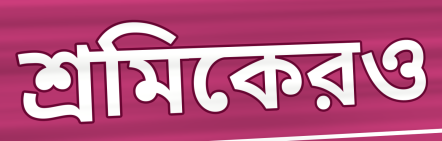
শ্রমিকেরও